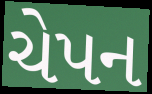
ચેપન